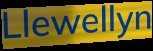
Llewellyn